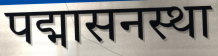
पद्मासनस्था